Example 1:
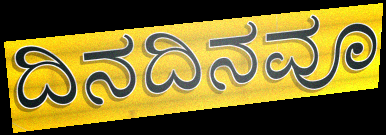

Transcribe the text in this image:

ದಿನದಿನವೂ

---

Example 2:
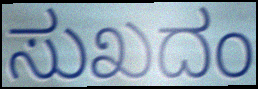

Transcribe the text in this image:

ಸುಖದಂ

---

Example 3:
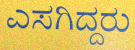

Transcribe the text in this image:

ಎಸಗಿದ್ದರು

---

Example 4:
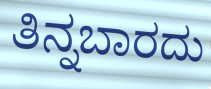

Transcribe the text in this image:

ತಿನ್ನಬಾರದು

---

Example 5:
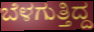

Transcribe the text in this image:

ಬೆಳಗುತ್ತಿದ್ದ